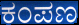
ಕಂಪಣ